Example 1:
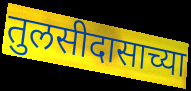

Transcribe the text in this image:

तुलसीदासाच्या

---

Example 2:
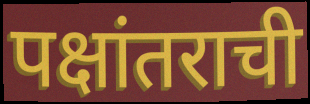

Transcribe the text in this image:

पक्षांतराची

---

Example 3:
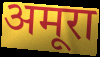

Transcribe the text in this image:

अमूरा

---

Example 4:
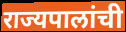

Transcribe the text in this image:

राज्यपालांची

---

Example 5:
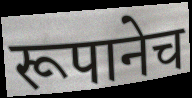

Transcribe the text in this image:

रूपानेच